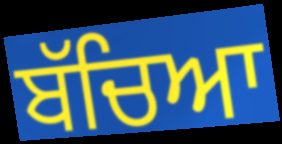
ਬੱਚਿਆ